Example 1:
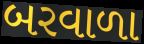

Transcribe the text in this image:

બરવાળા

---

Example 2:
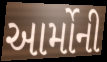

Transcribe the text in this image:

આર્મોની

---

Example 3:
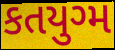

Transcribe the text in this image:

કતયુગ્મ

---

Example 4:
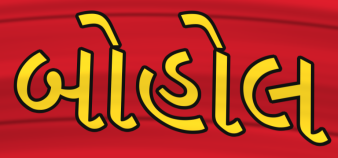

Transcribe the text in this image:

બોહોલ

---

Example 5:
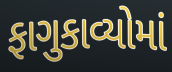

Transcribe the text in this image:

ફાગુકાવ્યોમાં